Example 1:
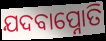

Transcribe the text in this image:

ଯଦବାପ୍ନୋତି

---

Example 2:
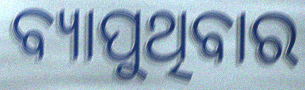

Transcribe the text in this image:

ବ୍ୟାପୁଥିବାର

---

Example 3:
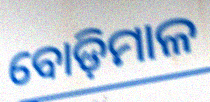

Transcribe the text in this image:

ବୋଡ଼ିମାଳ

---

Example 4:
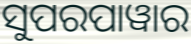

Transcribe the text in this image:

ସୁପରପାୱାର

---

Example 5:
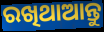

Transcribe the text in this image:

ରଖିଥାଆନ୍ତୁ